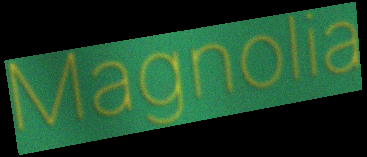
Magnolia